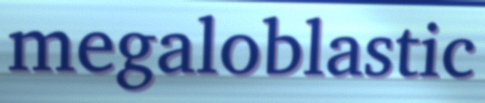
megaloblastic